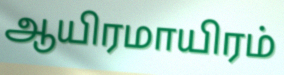
ஆயிரமாயிரம்